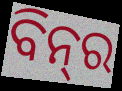
ବିନ୍‍ର